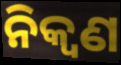
ନିକ୍ୱଣ